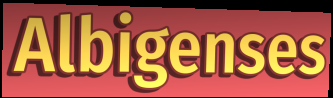
Albigenses